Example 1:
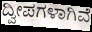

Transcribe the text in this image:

ದ್ವೀಪಗಳಾಗಿವೆ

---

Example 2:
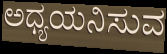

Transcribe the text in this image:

ಅಧ್ಯಯನಿಸುವ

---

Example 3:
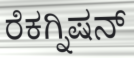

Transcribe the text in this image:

ರೆಕಗ್ನಿಷನ್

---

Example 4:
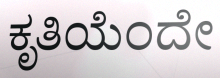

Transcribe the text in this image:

ಕೃತಿಯೆಂದೇ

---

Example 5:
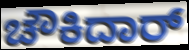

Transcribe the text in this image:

ಚೌಕಿದಾರ್